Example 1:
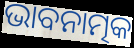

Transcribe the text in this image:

ଭାବନାତ୍ମକ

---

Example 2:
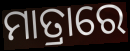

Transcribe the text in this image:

ମାତ୍ରାରେ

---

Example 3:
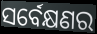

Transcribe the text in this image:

ସର୍ବେକ୍ଷଣର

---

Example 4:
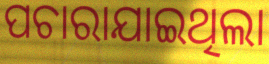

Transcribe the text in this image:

ପଚାରାଯାଇଥିଲା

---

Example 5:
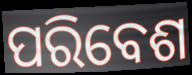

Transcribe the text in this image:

ପରିବେଶ